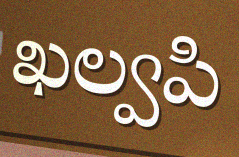
ఖల్వపి